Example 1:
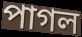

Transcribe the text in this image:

পাগল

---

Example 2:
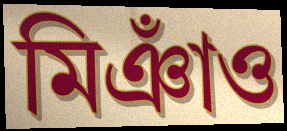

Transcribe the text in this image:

মিঞাঁও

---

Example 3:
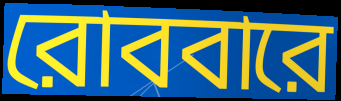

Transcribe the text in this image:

রোববারে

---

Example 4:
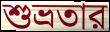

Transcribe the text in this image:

শুভ্রতার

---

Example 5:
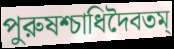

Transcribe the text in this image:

পুরুষশ্চাধিদৈবতম্